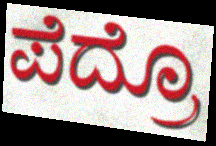
ಪೆದ್ರೊ